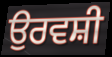
ਉਰਵਸ਼ੀ